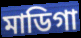
মাডিগা